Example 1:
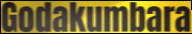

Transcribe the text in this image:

Godakumbara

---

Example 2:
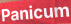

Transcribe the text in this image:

Panicum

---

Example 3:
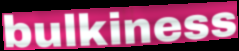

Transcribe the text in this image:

bulkiness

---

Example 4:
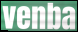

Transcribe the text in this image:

venba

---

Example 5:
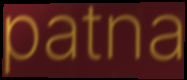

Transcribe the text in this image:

patna